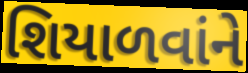
શિયાળવાંને